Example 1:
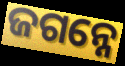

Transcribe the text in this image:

ଜଗନ୍ନେ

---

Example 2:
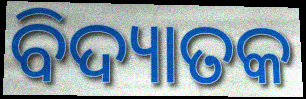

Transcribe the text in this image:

ବିଦ୍ୟାତକ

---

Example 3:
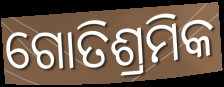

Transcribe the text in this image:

ଗୋତିଶ୍ରମିକ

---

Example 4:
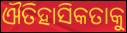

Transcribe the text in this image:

ଐତିହାସିକତାକୁ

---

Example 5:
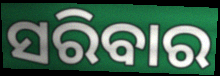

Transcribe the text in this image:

ସରିବାର